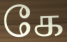
கே